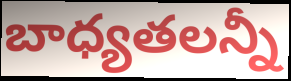
బాధ్యతలన్నీ